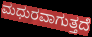
ಮಧುರವಾಗುತ್ತದೆ